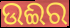
ଉଈର